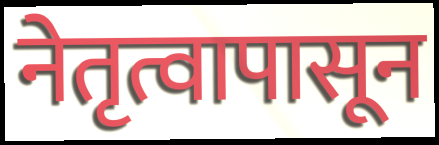
नेतृत्वापासून